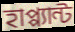
হাপ্প্যান্ট